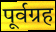
पूर्वग्रह